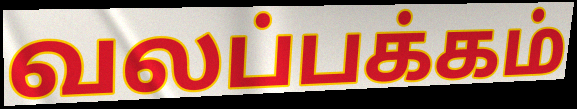
வலப்பக்கம்